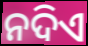
ନଦିଏ